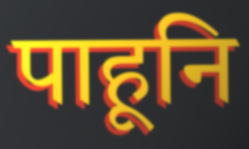
पाहूनि